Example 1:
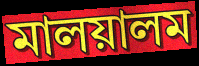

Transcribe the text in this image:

মালয়ালম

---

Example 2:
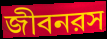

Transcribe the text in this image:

জীবনরস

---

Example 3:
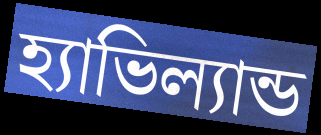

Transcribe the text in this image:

হ্যাভিল্যান্ড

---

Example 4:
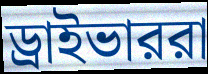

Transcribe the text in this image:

ড্রাইভাররা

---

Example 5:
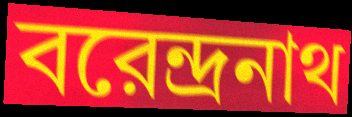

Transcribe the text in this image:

বরেন্দ্রনাথ